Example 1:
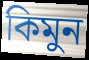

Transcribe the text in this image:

কিমুন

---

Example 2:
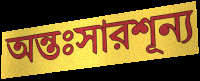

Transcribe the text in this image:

অন্তঃসারশূন্য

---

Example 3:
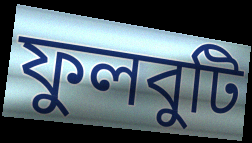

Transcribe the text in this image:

ফুলবুটি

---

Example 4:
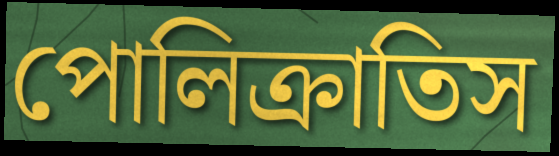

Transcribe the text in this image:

পোলিক্রাতিস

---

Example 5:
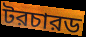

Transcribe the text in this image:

টরচারড